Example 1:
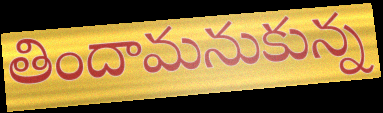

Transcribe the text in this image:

తిందామనుకున్న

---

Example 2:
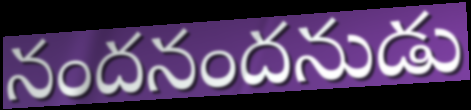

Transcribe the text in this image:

నందనందనుడు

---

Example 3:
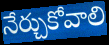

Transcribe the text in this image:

నేర్చుకోవాలి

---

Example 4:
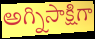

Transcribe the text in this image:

అగ్నిసాక్షిగా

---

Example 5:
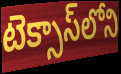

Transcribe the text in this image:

టెక్సాస్‌లోని